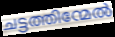
ചട്ടത്തിന്മേൽ